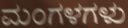
ಮಂಗಳಗಳು